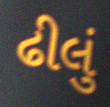
ઢીલું